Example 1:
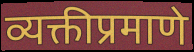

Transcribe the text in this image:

व्यक्तीप्रमाणे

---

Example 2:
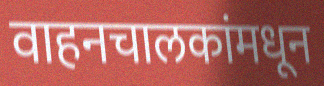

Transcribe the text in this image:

वाहनचालकांमधून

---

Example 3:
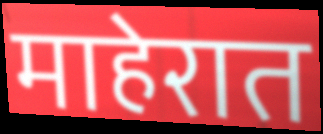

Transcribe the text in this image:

माहेरात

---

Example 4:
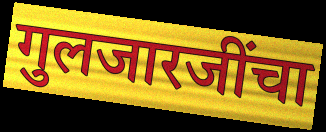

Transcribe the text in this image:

गुलजारजींचा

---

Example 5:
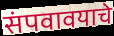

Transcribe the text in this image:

संपवावयाचे